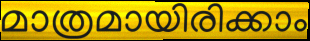
മാത്രമായിരിക്കാം